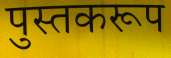
पुस्तकरूप